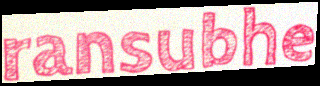
ransubhe